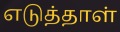
எடுத்தாள்